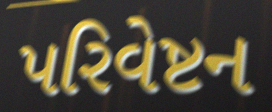
પરિવેષ્ટન